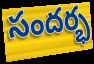
సందర్భ